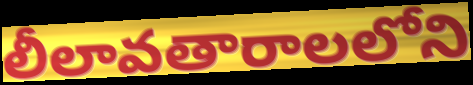
లీలావతారాలలోని